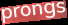
prongs